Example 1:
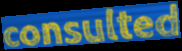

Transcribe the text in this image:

consulted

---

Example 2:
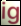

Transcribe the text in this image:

ig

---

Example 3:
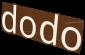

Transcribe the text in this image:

dodo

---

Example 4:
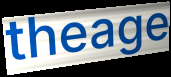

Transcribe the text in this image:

theage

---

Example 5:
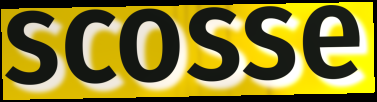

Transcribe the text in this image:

scosse